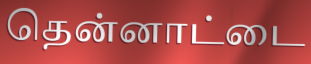
தென்னாட்டை